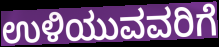
ಉಳಿಯುವವರಿಗೆ